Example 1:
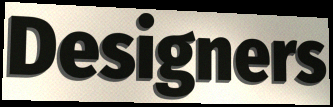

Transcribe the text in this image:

Designers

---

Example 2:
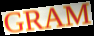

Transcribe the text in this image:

GRAM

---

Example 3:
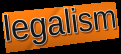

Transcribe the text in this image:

legalism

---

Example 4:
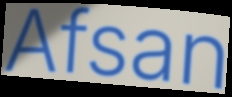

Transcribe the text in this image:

Afsan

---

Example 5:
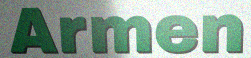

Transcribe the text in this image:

Armen